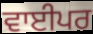
ਵਾਈਪਰ